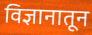
विज्ञानातून